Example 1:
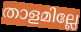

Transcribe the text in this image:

താളമില്ലേ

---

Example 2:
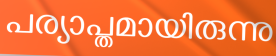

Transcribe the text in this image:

പര്യാപ്തമായിരുന്നു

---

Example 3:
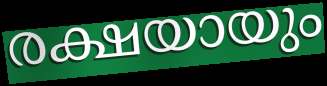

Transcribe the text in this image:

രക്ഷയായും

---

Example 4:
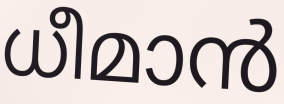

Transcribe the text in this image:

ധീമാൻ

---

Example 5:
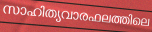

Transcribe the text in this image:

സാഹിത്യവാരഫലത്തിലെ